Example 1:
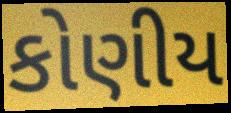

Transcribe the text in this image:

કોણીય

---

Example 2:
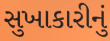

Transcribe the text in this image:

સુખાકારીનું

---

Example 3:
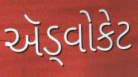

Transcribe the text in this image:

ઍડ્વોકેટ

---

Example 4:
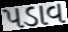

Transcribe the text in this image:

પડાવ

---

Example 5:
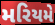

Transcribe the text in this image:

મરિયમે